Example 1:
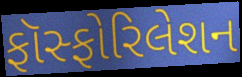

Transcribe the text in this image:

ફૉસ્ફોરિલેશન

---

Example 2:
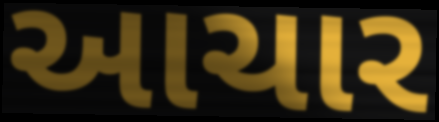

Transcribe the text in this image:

આચાર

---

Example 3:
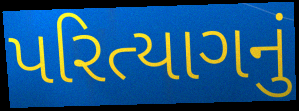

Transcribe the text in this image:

પરિત્યાગનું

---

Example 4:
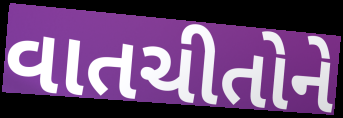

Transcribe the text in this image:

વાતચીતોને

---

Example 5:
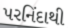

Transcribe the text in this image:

પરનિંદાથી